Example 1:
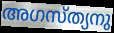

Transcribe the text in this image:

അഗസ്ത്യനു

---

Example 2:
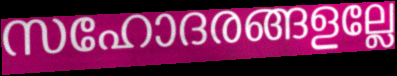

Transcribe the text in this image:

സഹോദരങ്ങളല്ലേ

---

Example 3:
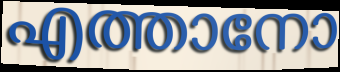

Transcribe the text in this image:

എത്താനോ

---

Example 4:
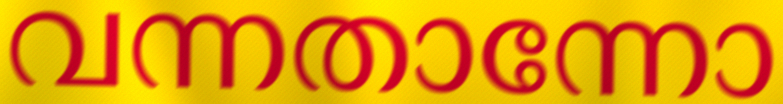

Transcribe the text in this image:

വന്നതാന്നോ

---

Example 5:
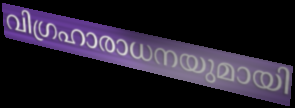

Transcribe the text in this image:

വിഗ്രഹാരാധനയുമായി